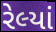
રેલ્યાં